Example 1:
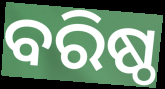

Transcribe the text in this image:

ବରିଷ୍ଠ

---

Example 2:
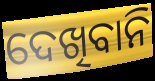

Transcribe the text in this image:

ଦେଖିବାନି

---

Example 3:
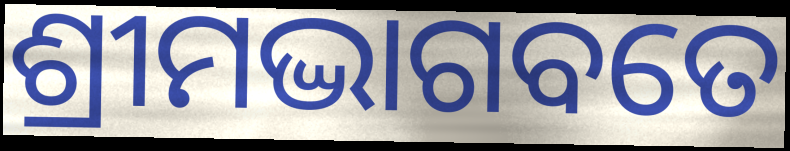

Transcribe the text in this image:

ଶ୍ରୀମଦ୍ଭାଗବତେ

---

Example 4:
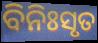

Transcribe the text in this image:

ବିନିଃସୃତ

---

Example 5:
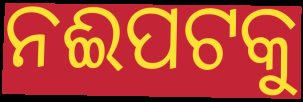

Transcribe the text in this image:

ନଈପଟକୁ